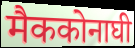
मैककोनाघी